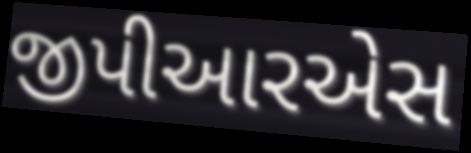
જીપીઆરએસ